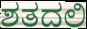
ಶತದಲಿ